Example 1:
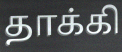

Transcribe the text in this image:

தாக்கி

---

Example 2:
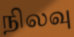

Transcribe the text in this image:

நிலவு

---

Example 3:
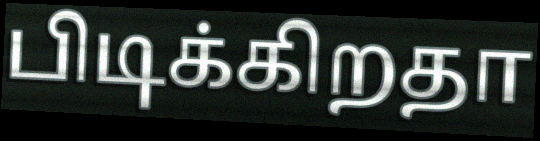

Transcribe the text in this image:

பிடிக்கிறதா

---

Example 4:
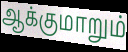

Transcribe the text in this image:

ஆக்குமாறும்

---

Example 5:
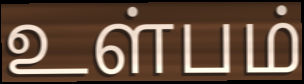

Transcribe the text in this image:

உள்பம்